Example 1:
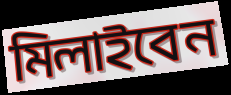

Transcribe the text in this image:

মিলাইবেন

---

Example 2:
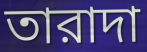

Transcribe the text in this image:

তারাদা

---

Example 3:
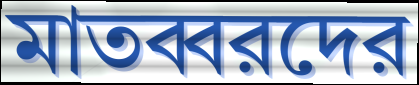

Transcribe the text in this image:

মাতব্বরদের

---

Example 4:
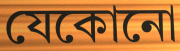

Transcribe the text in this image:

যেকোনো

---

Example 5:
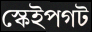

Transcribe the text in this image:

স্কেইপগট